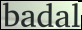
badal